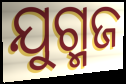
ଯୁଗ୍ମଜ